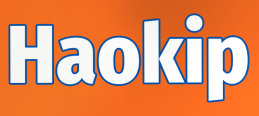
Haokip